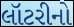
લૉટરીનો